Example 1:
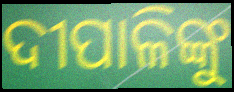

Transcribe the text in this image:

ଦୀପାଳିଙ୍କୁ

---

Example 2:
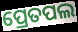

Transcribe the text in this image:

ପ୍ରେତପଲ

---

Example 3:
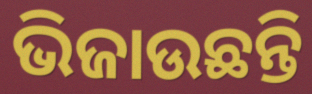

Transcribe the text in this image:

ଭିଜାଉଛନ୍ତି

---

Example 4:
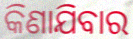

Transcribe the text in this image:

କିଣାଯିବାର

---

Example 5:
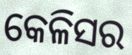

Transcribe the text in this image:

କେଳିସର